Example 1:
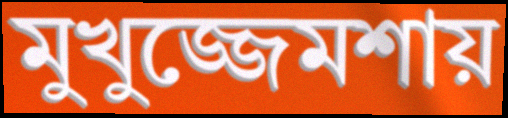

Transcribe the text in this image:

মুখুজ্জেমশায়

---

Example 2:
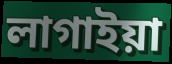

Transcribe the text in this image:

লাগাইয়া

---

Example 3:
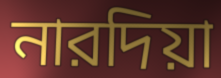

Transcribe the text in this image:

নারদিয়া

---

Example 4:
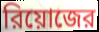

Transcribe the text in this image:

রিয়োজের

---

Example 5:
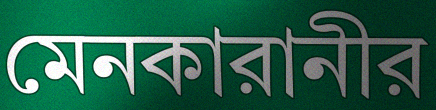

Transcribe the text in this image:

মেনকারানীর